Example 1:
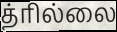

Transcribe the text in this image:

த்ரில்லை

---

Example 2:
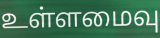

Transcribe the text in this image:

உள்ளமைவு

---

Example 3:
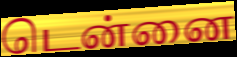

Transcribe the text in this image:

டென்னை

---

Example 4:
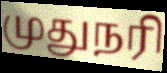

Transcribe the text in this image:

முதுநரி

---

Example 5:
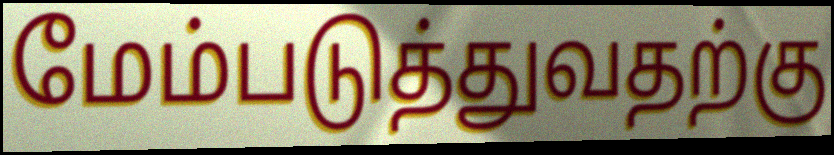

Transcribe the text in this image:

மேம்படுத்துவதற்கு